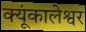
क्यूंकालेश्वर